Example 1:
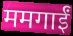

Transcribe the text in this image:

ममगाईं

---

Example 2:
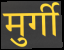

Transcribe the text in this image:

मुर्गी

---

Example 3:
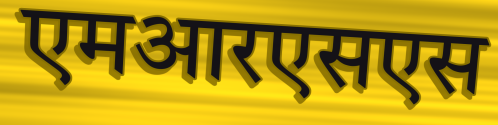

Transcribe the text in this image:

एमआरएसएस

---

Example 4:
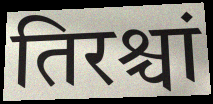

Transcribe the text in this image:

तिरश्चां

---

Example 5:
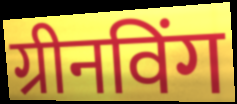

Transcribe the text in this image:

ग्रीनविंग